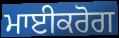
ਮਾਈਕਰੋਗ